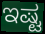
ಇಷ್ಟ